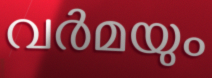
വർമയും